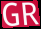
GR